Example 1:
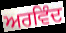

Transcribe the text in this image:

ਅਰਵਿੰਦ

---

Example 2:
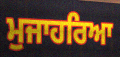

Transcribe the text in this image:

ਮੁਜਾਹਰਿਆ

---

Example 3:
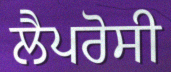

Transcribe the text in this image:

ਲੈਪਰੋਸੀ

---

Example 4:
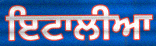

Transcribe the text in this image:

ਇਟਾਲੀਆ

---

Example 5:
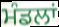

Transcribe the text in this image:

ਮੰਡਲਾਂ